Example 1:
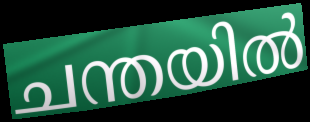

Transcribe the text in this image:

ചന്തയിൽ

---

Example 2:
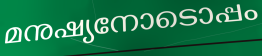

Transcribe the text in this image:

മനുഷ്യനോടൊപ്പം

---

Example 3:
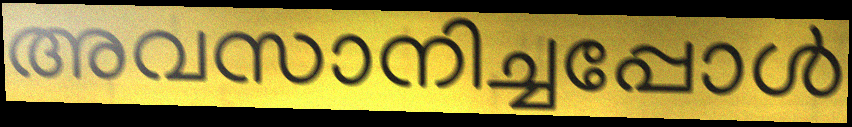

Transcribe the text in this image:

അവസാനിച്ചപ്പോൾ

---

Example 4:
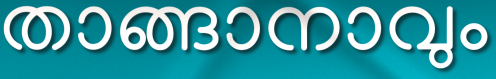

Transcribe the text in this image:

താങ്ങാനാവും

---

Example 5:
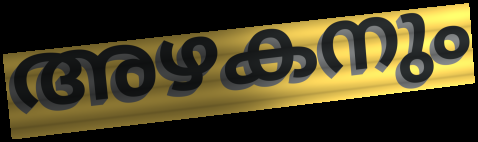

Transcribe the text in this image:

അഴകനും